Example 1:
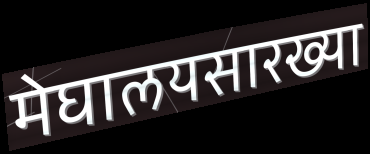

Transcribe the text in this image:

मेघालयसारख्या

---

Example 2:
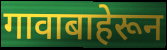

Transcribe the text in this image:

गावाबाहेरून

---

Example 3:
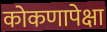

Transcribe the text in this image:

कोकणापेक्षा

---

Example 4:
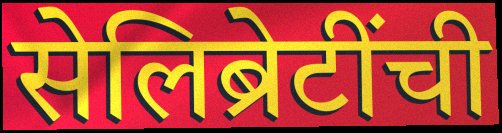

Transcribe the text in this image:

सेलिब्रेटींची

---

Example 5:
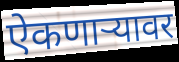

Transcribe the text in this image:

ऐकणाऱ्यावर